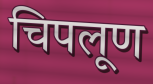
चिपलूण